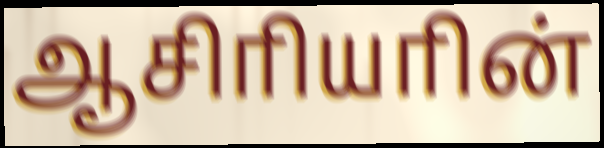
ஆசிரியரின்